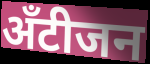
अँटीजन